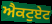
ਐਕਟੁਏਟ